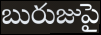
బురుజుపై